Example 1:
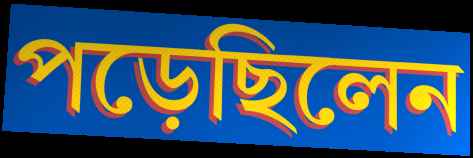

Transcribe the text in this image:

পড়েছিলেন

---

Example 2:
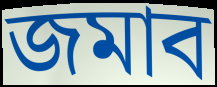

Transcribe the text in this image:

জমাব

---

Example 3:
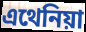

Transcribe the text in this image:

এথেনিয়া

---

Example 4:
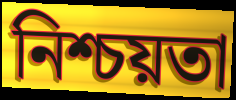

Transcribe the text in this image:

নিশ্চয়তা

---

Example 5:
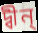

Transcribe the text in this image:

দ্বীন্